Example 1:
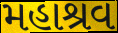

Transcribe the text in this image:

મહાશ્રવ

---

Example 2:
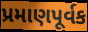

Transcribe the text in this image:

પ્રમાણપૂર્વક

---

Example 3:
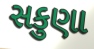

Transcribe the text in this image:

સકુણા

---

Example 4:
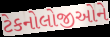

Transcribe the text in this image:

ટેકનોલોજીઓને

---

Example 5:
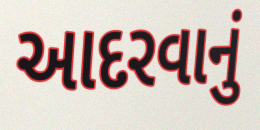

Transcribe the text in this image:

આદરવાનું